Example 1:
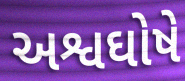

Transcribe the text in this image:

અશ્વઘોષે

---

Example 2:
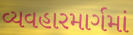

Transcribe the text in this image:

વ્યવહારમાર્ગમાં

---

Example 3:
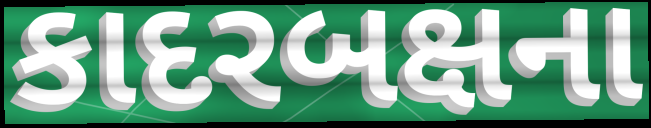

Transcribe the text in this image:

કાદરબક્ષના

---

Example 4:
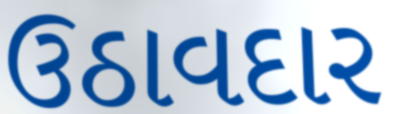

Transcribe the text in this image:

ઉઠાવદાર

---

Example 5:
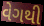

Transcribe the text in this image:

વેગથી